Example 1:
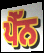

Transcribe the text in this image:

ਪੈੱਨ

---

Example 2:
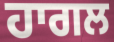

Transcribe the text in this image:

ਹਾਗਲ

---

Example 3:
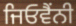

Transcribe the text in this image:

ਜਿਓਵੈਂਨੀ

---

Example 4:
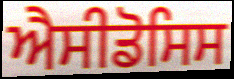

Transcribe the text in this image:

ਐਸੀਡੋਸਿਸ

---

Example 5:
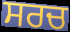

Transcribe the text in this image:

ਸਰਚ